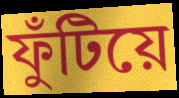
ফুঁটিয়ে